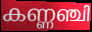
കണ്ണഞ്ചി